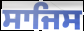
ਸਾਜਿਸ